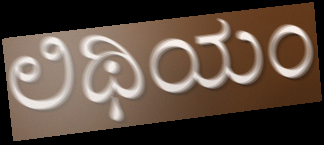
ಲಿಥಿಯಂ